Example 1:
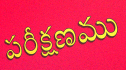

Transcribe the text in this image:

పరీక్షణము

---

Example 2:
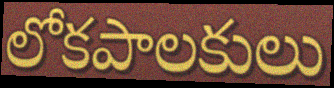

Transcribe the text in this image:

లోకపాలకులు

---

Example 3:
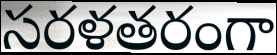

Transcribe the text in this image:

సరళతరంగా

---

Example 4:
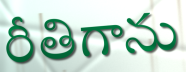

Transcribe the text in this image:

రీతిగాను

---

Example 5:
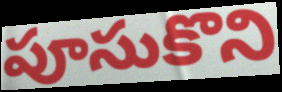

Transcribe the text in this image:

పూసుకొని